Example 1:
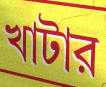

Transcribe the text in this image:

খাটার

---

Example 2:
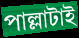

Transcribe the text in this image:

পাল্লাটাই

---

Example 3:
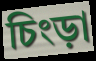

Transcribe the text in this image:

চিংড়া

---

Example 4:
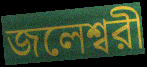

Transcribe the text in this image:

জলেশ্বরী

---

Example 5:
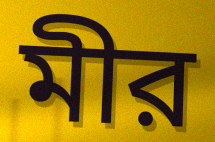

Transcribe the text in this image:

মীর